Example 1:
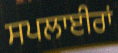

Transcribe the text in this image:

ਸਪਲਾਈਰਾਂ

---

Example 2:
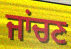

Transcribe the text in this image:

ਜਾਂਚਣ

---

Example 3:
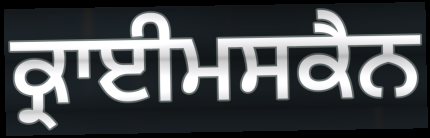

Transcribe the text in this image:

ਕ੍ਰਾਈਮਸਕੈਨ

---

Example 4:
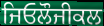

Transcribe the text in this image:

ਜਿਓਲੌਜੀਕਲ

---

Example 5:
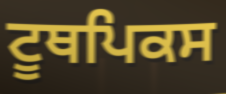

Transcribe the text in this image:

ਟੂਥਪਿਕਸ